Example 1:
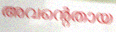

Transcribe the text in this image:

അവന്റെതായ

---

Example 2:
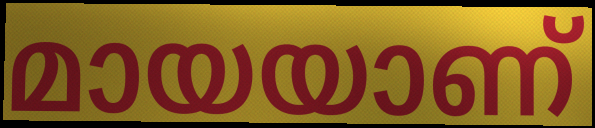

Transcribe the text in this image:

മായയാണ്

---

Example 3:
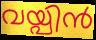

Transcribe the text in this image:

വയ്പിൻ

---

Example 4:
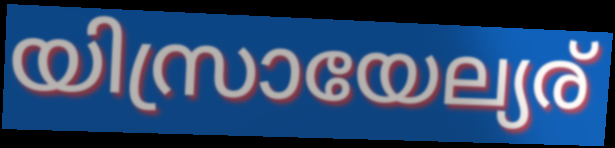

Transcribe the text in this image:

യിസ്രായേല്യര്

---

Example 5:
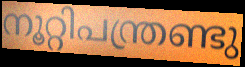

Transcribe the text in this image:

നൂറ്റിപന്ത്രണ്ടു